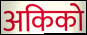
अकिको